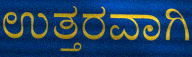
ಉತ್ತರವಾಗಿ